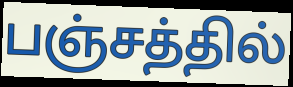
பஞ்சத்தில்